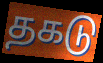
தகடு